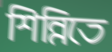
শিন্নিতে